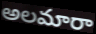
అలమారా